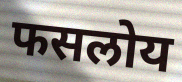
फसलोय